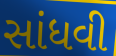
સાંધવી